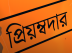
প্রিয়ম্বদার